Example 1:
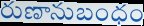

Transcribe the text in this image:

రుణానుబంధం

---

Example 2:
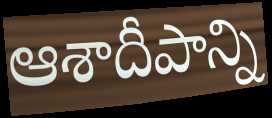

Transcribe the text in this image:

ఆశాదీపాన్ని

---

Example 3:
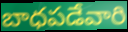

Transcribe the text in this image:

బాధపడేవారి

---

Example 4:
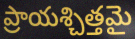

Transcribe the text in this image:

ప్రాయశ్చిత్తమై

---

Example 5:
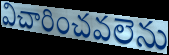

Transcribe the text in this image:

విచారించవలెను